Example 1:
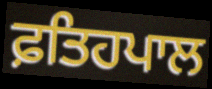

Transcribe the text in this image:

ਫ਼ਤਿਹਪਾਲ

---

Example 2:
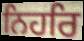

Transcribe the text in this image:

ਨਿਹਰਿ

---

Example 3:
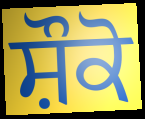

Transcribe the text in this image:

ਸ਼ੌਕੋ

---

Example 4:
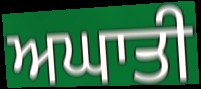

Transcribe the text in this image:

ਅਘਾਤੀ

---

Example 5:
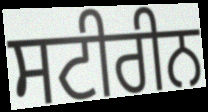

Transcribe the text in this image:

ਸਟੀਰੀਨ